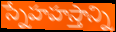
స్నేహహస్తాన్ని